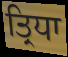
ਤ੍ਰਿਧਾ